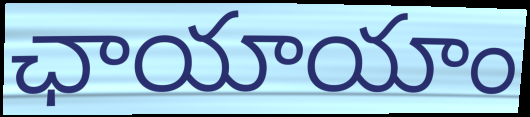
ఛాయాయాం